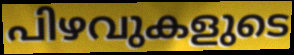
പിഴവുകളുടെ